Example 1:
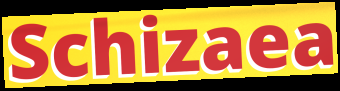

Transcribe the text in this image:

Schizaea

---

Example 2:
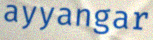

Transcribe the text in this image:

ayyangar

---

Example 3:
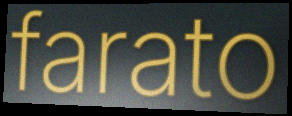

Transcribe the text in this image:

farato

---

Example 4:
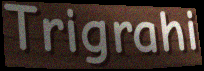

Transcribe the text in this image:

Trigrahi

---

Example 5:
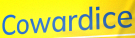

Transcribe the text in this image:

Cowardice